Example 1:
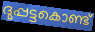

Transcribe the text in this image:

ദുപ്പട്ടകൊണ്ട്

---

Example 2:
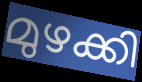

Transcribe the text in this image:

മുഴക്കി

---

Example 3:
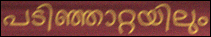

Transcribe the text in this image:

പടിഞ്ഞാറ്റയിലും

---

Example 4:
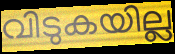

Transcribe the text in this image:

വിടുകയില്ല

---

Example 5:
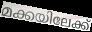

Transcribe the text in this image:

മക്കയിലേക്ക്